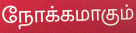
நோக்கமாகும்